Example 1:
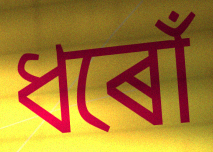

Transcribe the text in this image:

ধৰোঁ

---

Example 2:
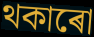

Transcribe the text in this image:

থকাৰো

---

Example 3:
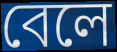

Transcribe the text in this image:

বেলে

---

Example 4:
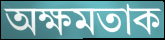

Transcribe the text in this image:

অক্ষমতাক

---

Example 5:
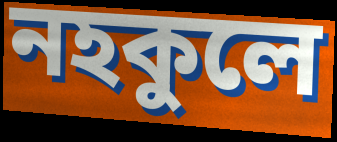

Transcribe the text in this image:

নহকুলে